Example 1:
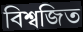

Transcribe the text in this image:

বিশ্বজিত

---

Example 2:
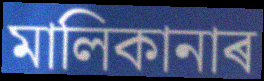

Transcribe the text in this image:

মালিকানাৰ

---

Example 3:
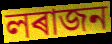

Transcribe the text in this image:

লৰাজন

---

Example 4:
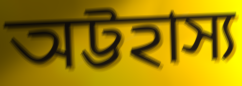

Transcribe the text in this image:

অট্টহাস্য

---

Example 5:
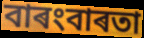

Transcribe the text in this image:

বাৰংবাৰতা